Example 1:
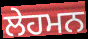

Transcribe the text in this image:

ਲੇਹਮਨ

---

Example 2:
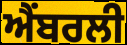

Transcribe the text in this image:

ਐਂਬਰਲੀ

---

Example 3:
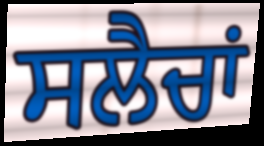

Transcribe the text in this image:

ਸਲੈਚਾਂ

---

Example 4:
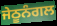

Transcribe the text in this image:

ਜੇਠੂਨੰਗਲ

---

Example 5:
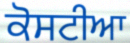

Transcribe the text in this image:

ਕੋਸਟੀਆ